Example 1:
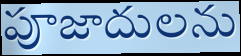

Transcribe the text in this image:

పూజాదులను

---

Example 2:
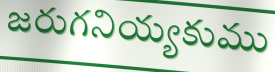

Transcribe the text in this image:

జరుగనియ్యకుము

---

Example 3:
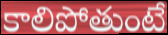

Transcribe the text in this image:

కాలిపోతుంటే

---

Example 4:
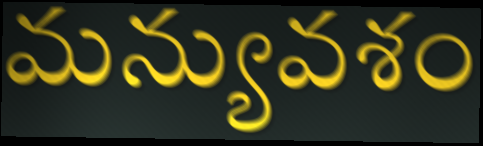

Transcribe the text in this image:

మన్యువశం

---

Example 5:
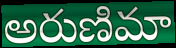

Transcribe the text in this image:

అరుణిమా